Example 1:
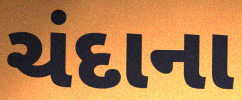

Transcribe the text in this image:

ચંદાના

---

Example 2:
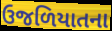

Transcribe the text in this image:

ઉજળિયાતના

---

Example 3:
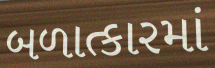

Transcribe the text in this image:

બળાત્કારમાં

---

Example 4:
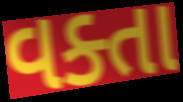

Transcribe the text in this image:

વક્તા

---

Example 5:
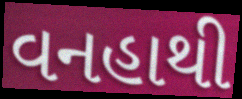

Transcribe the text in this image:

વનહાથી